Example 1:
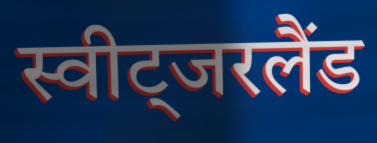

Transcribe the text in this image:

स्वीट्जरलैंड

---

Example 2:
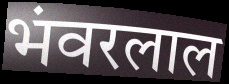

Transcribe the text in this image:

भंवरलाल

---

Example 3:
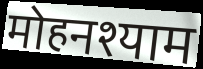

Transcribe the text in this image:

मोहनश्याम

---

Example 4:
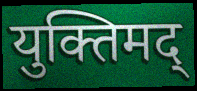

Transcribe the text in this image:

युक्तिमद्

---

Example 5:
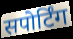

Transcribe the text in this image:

सपोर्टिंग